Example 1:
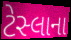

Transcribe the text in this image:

ટેસ્લાના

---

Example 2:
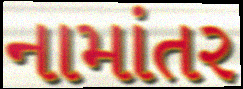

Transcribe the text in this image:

નામાંતર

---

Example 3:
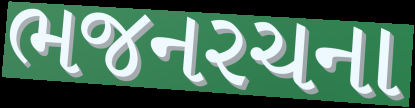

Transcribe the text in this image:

ભજનરચના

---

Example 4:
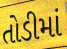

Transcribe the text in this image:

તોડીમાં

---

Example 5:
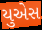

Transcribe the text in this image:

યુએસ